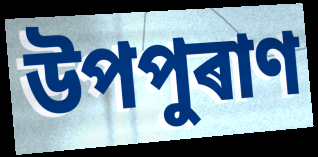
উপপুৰাণ